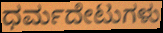
ಧರ್ಮದೇಟುಗಳು